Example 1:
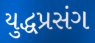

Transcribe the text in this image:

યુદ્ધપ્રસંગ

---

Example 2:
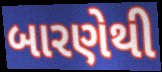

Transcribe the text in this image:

બારણેથી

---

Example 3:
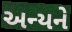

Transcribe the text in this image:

અન્યને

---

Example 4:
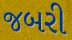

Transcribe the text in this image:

જબરી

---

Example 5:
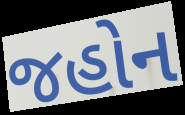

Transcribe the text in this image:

જહોન